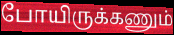
போயிருக்கணும்